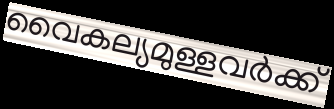
വൈകല്യമുള്ളവർക്ക്